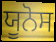
ਯੂਨੋਸ